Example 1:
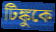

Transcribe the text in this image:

টিঙ্কুকে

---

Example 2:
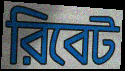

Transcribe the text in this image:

রিবেট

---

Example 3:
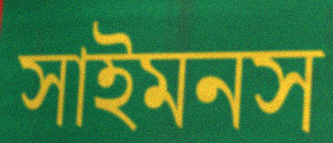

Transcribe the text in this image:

সাইমনস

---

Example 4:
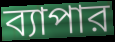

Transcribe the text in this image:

ব্যাপার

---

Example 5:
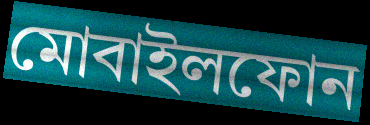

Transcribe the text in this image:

মোবাইলফোন